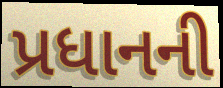
પ્રધાનની